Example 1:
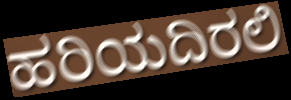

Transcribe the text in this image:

ಹರಿಯದಿರಲಿ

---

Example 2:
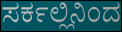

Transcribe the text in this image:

ಸರ್ಕಲ್ಲಿನಿಂದ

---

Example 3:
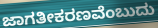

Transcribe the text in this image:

ಜಾಗತೀಕರಣವೆಂಬುದು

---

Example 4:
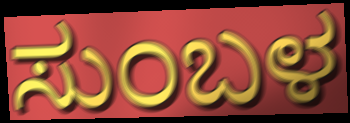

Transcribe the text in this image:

ಸುಂಬಳ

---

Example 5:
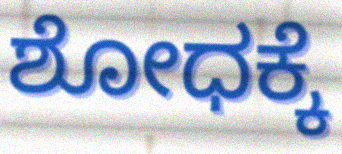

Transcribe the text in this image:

ಶೋಧಕ್ಕೆ